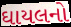
ઘાયલનો